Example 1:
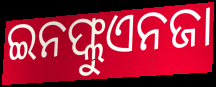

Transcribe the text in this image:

ଇନଫ୍ଲୁଏନଜା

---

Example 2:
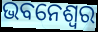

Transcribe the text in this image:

ଭବନେଶ୍ୱର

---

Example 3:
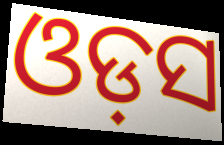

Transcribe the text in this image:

ଓଡ଼ସ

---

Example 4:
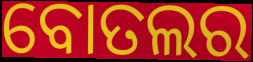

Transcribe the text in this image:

ବୋତଲର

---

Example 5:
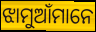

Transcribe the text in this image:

ଝାମୁଆଁମାନେ